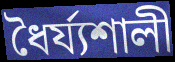
ধৈর্য্যশালী